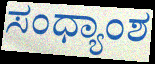
ಸಂಧ್ಯಾಂಶ